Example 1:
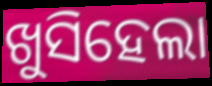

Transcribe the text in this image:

ଖୁସିହେଲା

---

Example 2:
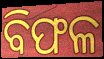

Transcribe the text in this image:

ବିଫଳ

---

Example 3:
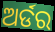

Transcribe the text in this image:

ଅର୍ଡର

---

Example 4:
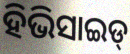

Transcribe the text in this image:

ହିଭିସାଇଡ୍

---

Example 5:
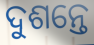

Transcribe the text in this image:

ଦୁଶନ୍ତେ